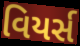
વિયર્સ